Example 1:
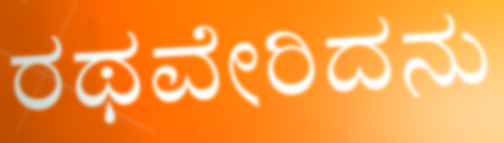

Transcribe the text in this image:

ರಥವೇರಿದನು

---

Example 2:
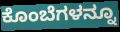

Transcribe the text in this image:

ಕೊಂಬೆಗಳನ್ನೂ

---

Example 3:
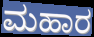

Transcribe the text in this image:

ಮಹಾರ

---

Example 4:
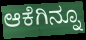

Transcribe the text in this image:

ಆಕೆಗಿನ್ನೂ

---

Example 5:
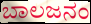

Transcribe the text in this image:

ಬಾಲಜನಂ